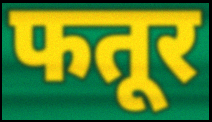
फतूर